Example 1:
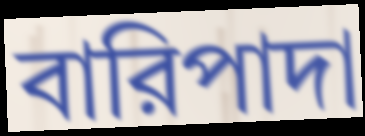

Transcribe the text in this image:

বারিপাদা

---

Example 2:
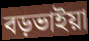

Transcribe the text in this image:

বড়ভাইয়া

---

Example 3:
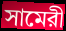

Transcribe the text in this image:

সামেরী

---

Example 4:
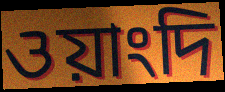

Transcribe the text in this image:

ওয়াংদি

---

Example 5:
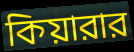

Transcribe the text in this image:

কিয়ারার